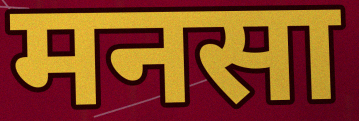
मनसा